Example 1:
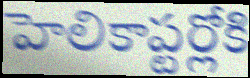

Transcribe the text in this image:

హెలికాప్టర్లోకి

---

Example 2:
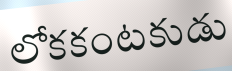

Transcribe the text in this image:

లోకకంటకుడు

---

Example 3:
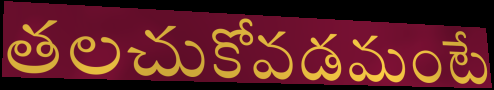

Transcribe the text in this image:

తలచుకోవడమంటే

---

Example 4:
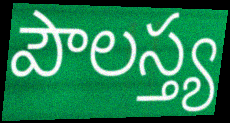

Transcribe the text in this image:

పౌలస్త్య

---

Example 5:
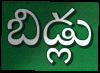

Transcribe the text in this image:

బిడ్లు